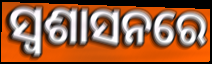
ସ୍ଵଶାସନରେ